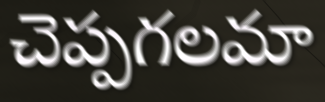
చెప్పగలమా